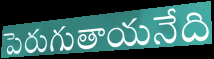
పెరుగుతాయనేది